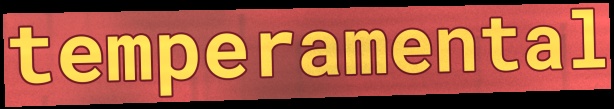
temperamental